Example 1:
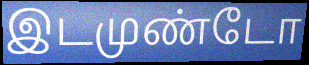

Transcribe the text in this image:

இடமுண்டோ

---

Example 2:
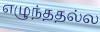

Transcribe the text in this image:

எழுந்ததல்ல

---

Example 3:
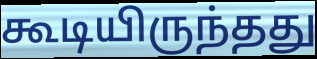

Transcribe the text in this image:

கூடியிருந்தது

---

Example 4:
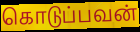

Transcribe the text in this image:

கொடுப்பவன்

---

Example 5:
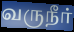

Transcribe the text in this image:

வருநீர்